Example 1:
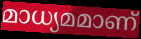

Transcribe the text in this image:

മാധ്യമമാണ്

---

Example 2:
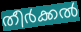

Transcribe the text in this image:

തീർക്കൽ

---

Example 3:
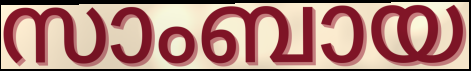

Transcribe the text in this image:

സാംബായ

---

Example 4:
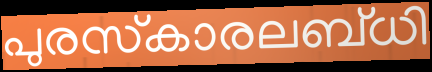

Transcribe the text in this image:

പുരസ്‌കാരലബ്ധി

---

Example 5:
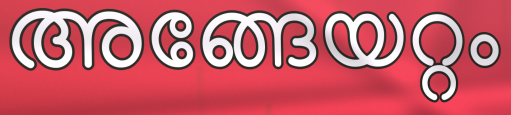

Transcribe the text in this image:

അങ്ങേയറ്റം